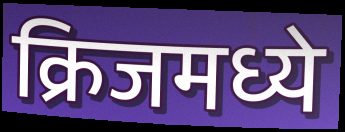
क्रिजमध्ये